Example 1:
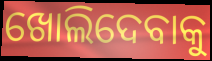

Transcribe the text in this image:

ଖୋଲିଦେବାକୁ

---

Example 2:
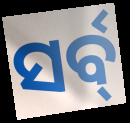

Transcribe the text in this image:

ସର୍ବ୍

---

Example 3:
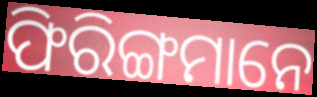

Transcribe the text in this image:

ଫିରିଙ୍ଗମାନେ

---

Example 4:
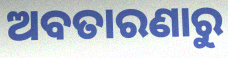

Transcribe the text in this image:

ଅବତାରଣାରୁ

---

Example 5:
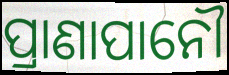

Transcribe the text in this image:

ପ୍ରାଣାପାନୌ